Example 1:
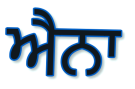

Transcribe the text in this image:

ਐਨਾ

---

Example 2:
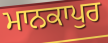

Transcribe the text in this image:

ਮਾਨਕਾਪੁਰ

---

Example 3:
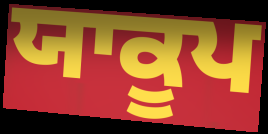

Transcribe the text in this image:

ਯਾਕੂਪ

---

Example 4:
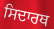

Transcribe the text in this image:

ਸਿਦਾਰਥ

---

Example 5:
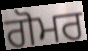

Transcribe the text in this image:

ਗੋਮਰ